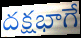
దక్షభాగే